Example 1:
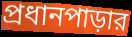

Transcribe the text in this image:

প্রধানপাড়ার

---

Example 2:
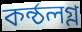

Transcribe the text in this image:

কন্ঠলগ্ন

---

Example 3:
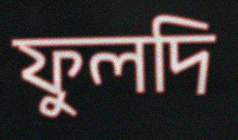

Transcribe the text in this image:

ফুলদি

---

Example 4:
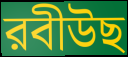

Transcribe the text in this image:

রবীউছ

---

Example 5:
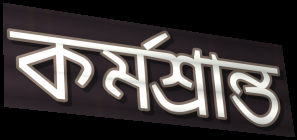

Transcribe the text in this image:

কর্মশ্রান্ত